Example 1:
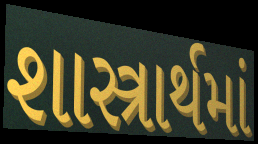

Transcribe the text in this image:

શાસ્ત્રાર્થમાં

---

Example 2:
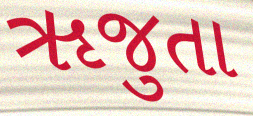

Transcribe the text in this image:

ૠજુતા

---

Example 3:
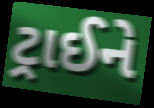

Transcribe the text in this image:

ટ્રાઈને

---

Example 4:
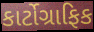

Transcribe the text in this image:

કાર્ટોગ્રાફિક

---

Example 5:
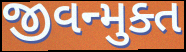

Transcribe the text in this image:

જીવન્મુક્ત